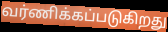
வர்ணிக்கப்படுகிறது